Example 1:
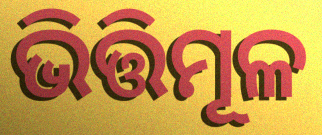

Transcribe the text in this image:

ଭିତ୍ତିମୂଳ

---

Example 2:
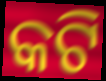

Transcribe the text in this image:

କଟି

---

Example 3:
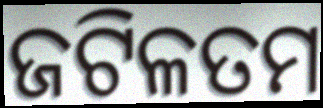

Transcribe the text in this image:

ଜଟିଳତମ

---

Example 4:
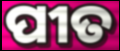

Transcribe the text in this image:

ପୀତ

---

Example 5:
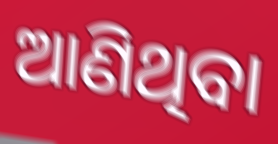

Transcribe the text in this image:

ଆଣିଥିବା